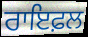
ਰਾਇਫ਼ਲ